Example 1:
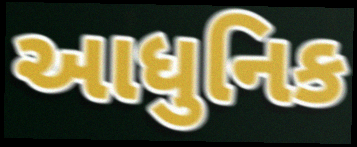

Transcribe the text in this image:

આધુનિક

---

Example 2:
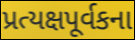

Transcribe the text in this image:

પ્રત્યક્ષપૂર્વકના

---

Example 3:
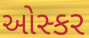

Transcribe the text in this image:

ઓસ્કર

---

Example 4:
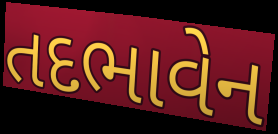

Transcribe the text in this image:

તદભાવેન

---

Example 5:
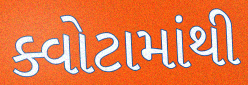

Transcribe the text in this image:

ક્વોટામાંથી